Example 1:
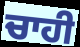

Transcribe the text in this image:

ਚਾਹੀ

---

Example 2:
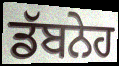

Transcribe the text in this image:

ਡੱਬਨੇਹ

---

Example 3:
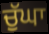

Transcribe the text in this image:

ਚੁੱਘਾ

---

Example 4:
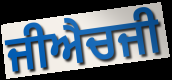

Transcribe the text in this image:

ਜੀਐਚਜੀ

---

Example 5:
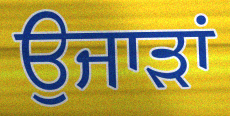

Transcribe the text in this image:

ਉਜਾੜਾਂ